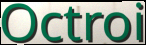
Octroi